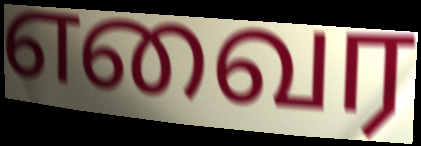
எவைர